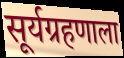
सूर्यग्रहणाला